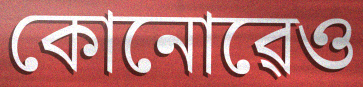
কোনোৱেও